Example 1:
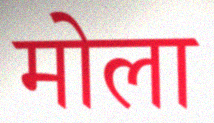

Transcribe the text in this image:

मोला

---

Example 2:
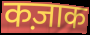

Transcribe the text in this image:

कज़ाक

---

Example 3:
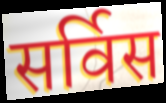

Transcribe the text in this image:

सर्विस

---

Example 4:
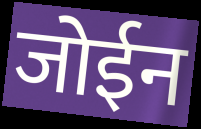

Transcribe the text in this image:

जोईन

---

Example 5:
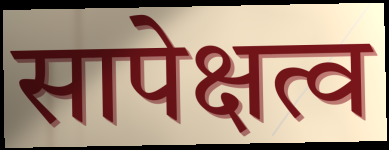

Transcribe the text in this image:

सापेक्षत्व